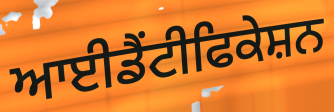
ਆਈਡੈਂਟੀਫਿਕੇਸ਼ਨ